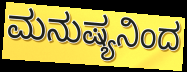
ಮನುಷ್ಯನಿಂದ